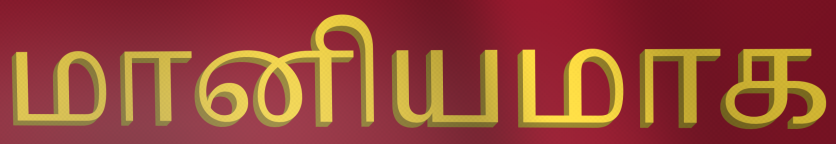
மானியமாக